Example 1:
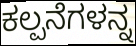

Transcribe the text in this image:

ಕಲ್ಪನೆಗಳನ್ನ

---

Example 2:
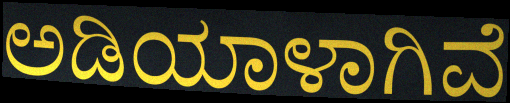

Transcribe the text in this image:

ಅಡಿಯಾಳಾಗಿವೆ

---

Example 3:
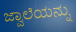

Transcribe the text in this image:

ಜ್ವಾಲೆಯನ್ನು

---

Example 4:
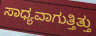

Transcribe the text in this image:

ಸಾಧ್ಯವಾಗುತ್ತಿತ್ತು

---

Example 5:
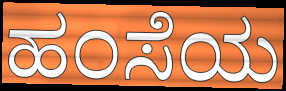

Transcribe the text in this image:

ಹಂಸೆಯ